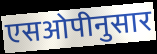
एसओपीनुसार